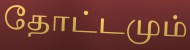
தோட்டமும்